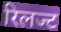
रिलज्ट